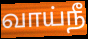
வாய்நீ